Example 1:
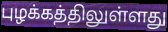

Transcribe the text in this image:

புழக்கத்திலுள்ளது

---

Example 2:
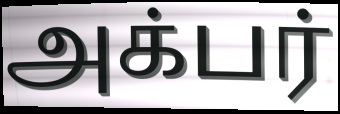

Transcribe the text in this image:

அக்பர்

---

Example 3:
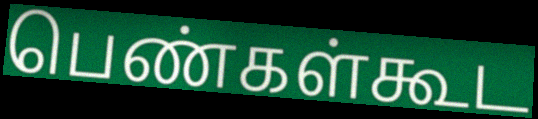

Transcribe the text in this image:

பெண்கள்கூட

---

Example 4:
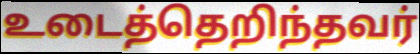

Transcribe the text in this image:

உடைத்தெறிந்தவர்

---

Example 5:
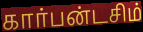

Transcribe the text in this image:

கார்பன்டசிம்